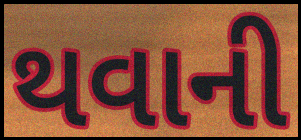
થવાની